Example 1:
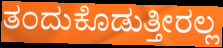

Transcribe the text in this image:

ತಂದುಕೊಡುತ್ತೀರಲ್ಲ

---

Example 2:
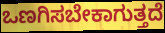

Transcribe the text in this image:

ಒಣಗಿಸಬೇಕಾಗುತ್ತದೆ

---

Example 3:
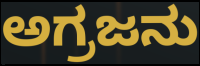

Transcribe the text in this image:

ಅಗ್ರಜನು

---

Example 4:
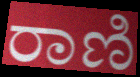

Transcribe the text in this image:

ರಾಣಿ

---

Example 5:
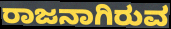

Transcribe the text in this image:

ರಾಜನಾಗಿರುವ